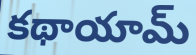
కథాయామ్